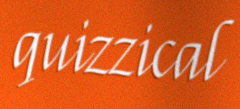
quizzical